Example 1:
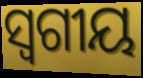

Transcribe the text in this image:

ସ୍ୱଗୀୟ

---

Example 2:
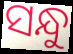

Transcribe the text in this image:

ସନ୍ଧୁ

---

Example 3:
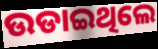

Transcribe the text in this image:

ଉଡାଇଥିଲେ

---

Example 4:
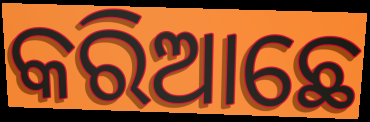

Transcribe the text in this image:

କରିଆଛେ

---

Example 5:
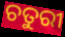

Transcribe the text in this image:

ଚତୁରୀ